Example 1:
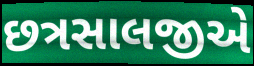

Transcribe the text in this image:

છત્રસાલજીએ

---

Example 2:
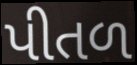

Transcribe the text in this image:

પીતળ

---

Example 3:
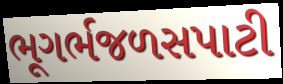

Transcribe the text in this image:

ભૂગર્ભજળસપાટી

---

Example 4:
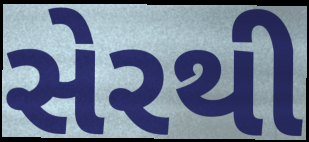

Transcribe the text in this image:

સેરથી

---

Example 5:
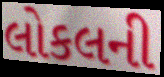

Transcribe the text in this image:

લોકલની